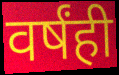
वर्षंही